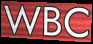
WBC